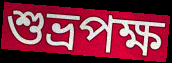
শুভ্রপক্ষ